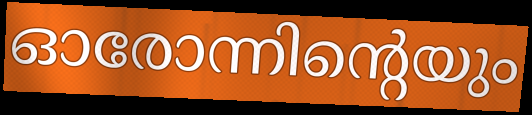
ഓരോന്നിന്റെയും